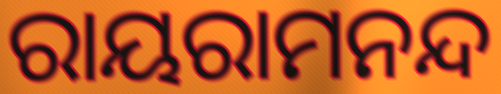
ରାୟରାମନନ୍ଦ